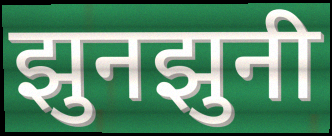
झुनझुनी